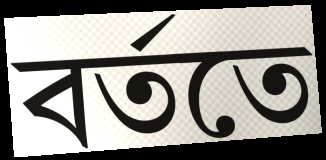
বর্ততে